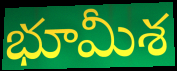
భూమీశ